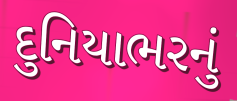
દુનિયાભરનું